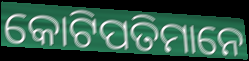
କୋଟିପତିମାନେ